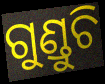
ଗୁଣ୍ଡୁଚି